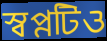
স্বপ্নটিও